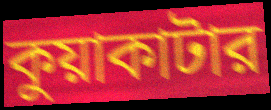
কুয়াকাটার